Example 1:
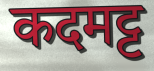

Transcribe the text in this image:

कदमट्ट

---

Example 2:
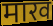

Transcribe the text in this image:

मारव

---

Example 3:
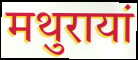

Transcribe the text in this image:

मथुरायां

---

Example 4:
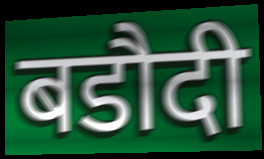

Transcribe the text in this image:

बडौदी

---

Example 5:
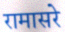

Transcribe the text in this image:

रामासरे